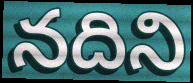
నదిని